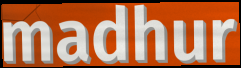
madhur